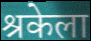
श्रकेला